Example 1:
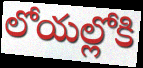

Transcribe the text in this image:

లోయల్లోకి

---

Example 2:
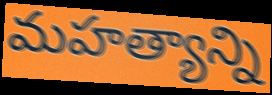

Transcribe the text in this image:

మహత్యాన్ని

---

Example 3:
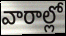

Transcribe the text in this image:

వారాల్లో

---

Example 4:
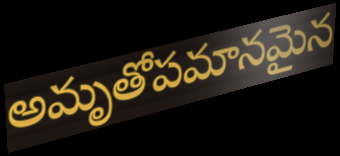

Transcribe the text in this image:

అమృతోపమానమైన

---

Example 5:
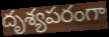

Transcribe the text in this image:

దృశ్యపరంగా